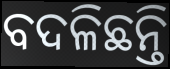
ବଦଳିଛନ୍ତି